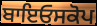
ਬਾਇਓਸਕੋਪ